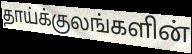
தாய்க்குலங்களின்